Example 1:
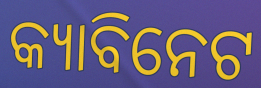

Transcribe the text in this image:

କ୍ୟାବିନେଟ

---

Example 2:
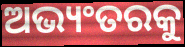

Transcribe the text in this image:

ଅଭ୍ୟଂତରକୁ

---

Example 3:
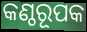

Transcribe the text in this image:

କଣ୍ଠରୂପକ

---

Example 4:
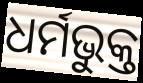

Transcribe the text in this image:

ଧର୍ମଭୁକ୍ତ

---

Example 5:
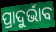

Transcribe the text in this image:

ପ୍ରାଦୁର୍ଭାବ